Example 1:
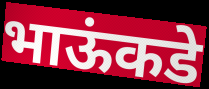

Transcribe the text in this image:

भाऊंकडे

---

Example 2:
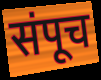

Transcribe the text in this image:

संपूच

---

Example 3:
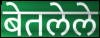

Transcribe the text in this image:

बेतलेले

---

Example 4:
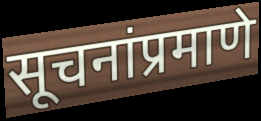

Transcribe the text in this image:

सूचनांप्रमाणे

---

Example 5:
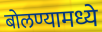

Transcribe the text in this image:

बोलण्यामध्ये